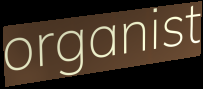
organist